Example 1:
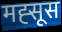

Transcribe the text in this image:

मह्सूस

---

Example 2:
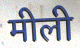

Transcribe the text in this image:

मीली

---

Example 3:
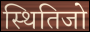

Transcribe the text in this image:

स्थितिजो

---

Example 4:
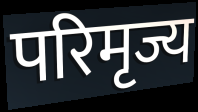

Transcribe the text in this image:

परिमृज्य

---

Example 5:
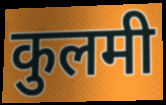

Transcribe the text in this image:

कुलमी